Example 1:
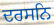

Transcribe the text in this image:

ਦਰਸਨਿ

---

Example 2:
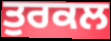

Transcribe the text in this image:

ਤੁਰਕਲ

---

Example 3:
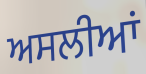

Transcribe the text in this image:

ਅਸਲੀਆਂ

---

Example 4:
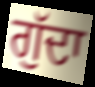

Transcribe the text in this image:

ਗੁੱਦਾ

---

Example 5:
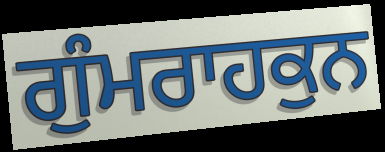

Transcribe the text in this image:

ਗੁੰਮਰਾਹਕੁਨ